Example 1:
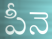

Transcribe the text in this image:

పీనె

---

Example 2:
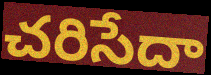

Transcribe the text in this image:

చరిసేదా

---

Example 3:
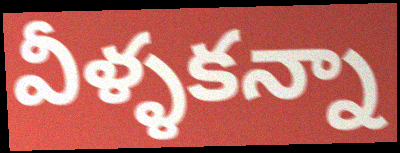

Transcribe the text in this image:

వీళ్ళకన్నా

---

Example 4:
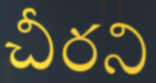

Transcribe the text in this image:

చీరని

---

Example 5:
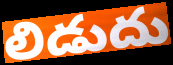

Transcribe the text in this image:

లిడుదు